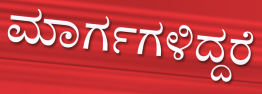
ಮಾರ್ಗಗಳಿದ್ದರೆ